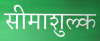
सीमाशुल्क